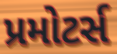
પ્રમોટર્સ